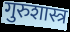
गुरुशास्त्र